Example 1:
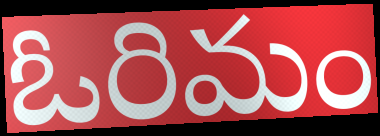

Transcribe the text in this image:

ఓరిమం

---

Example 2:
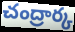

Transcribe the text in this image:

చంద్రార్క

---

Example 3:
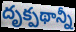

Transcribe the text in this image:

దృక్పథాన్నీ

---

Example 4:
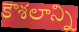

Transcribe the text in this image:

కౌశలాన్ని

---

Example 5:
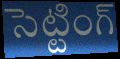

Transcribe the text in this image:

సెట్టింగ్